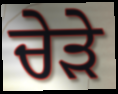
ਚੇੜੇ